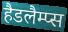
हैडलैम्प्स